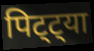
पिट्ट्या